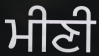
ਮੀਣੀ